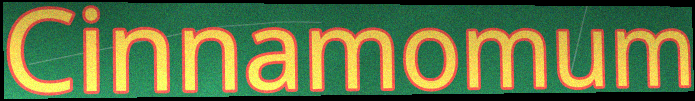
Cinnamomum